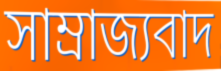
সাম্রাজ্যবাদ